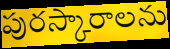
పురస్కారాలను